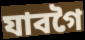
যাবগৈ